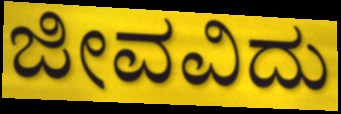
ಜೀವವಿದು